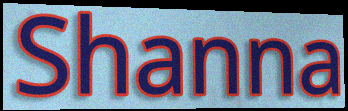
Shanna